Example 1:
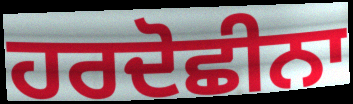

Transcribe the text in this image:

ਹਰਦੋਛੀਨਾ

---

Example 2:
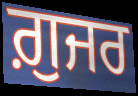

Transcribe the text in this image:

ਗ਼ੁਜਰ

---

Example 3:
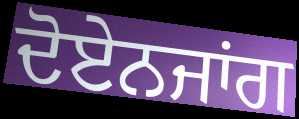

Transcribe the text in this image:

ਦੋਏਨਜਾਂਗ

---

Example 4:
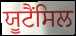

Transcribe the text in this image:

ਯੂਟੈਂਸਿਲ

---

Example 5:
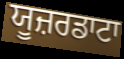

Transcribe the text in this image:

ਯੂਜ਼ਰਡਾਟਾ